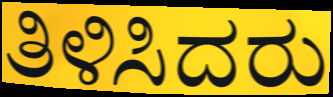
ತಿಳಿಸಿದರು